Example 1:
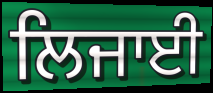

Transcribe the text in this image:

ਲਿਜਾਈ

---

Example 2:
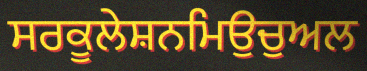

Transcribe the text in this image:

ਸਰਕੂਲੇਸ਼ਨਮਿਉਚੁਅਲ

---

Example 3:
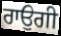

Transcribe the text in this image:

ਰਾਉਗੀ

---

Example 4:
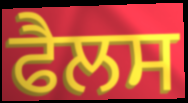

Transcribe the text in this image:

ਫੈਲਸ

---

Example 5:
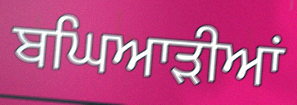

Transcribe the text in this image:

ਬਘਿਆੜੀਆਂ